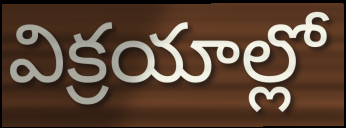
విక్రయాల్లో